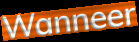
Wanneer